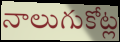
నాలుగుకోట్ల